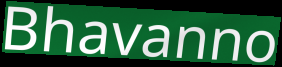
Bhavanno